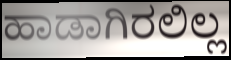
ಹಾಡಾಗಿರಲಿಲ್ಲ